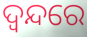
ଦ୍ଵନ୍ଦରେ